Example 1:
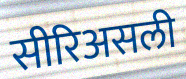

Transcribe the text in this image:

सीरिअसली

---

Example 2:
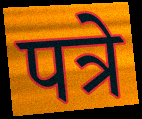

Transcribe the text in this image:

पत्रे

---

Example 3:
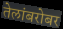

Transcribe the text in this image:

तेलांबरोबर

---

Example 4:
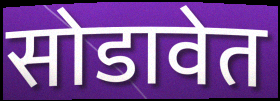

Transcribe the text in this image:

सोडावेत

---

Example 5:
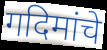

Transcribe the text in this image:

गदिमांचे